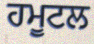
ਹਮੂਟਲ